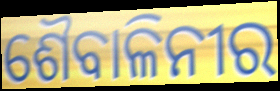
ଶୈବାଳିନୀର